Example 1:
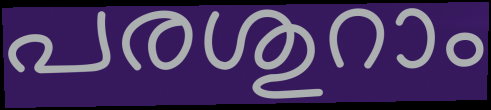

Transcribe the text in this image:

പരശുറാം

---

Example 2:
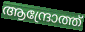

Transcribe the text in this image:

ആന്ദ്രോത്ത്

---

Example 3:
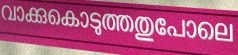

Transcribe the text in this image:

വാക്കുകൊടുത്തതുപോലെ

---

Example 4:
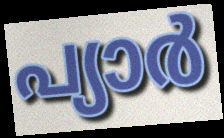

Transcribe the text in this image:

പ്യാർ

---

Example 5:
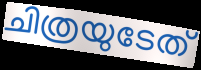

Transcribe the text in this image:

ചിത്രയുടേത്